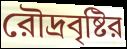
রৌদ্রবৃষ্টির